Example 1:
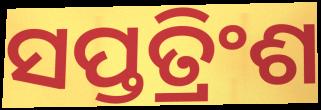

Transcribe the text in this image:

ସପ୍ତତ୍ରିଂଶ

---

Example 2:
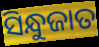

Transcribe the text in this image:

ସିନ୍ଧୁଜାତ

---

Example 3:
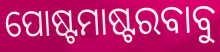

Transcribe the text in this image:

ପୋଷ୍ଟମାଷ୍ଟରବାବୁ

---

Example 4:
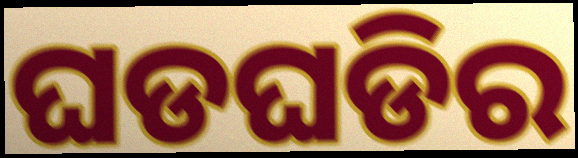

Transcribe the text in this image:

ଘଡଘଡିର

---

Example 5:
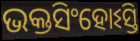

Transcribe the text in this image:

ଭକ୍ତସିଂହୋଽସ୍ତି